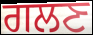
ਗਲਣ